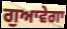
ਗੁਆਵੇਗਾ